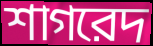
শাগরেদ